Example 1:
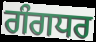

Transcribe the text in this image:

ਗੰਗਧਰ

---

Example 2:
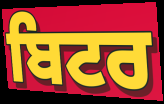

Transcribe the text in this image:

ਬਿਟਰ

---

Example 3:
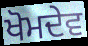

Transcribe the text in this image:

ਖੋਮਦੇਵ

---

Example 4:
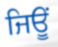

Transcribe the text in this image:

ਜਿਊਂ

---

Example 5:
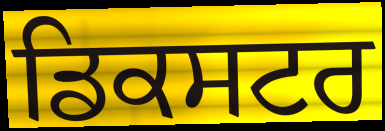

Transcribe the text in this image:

ਡਿਕਸਟਰ